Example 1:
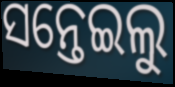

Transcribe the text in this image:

ସନ୍ତେଇଲୁ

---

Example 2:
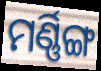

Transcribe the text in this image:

ମର୍ଣ୍ଣିଙ୍ଗ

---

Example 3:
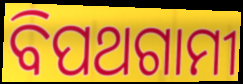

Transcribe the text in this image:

ବିପଥଗାମୀ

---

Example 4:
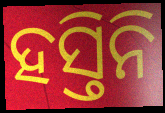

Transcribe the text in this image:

ହସ୍ତିନି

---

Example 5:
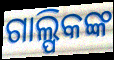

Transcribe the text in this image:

ଗାଲ୍ପିକଙ୍କ